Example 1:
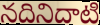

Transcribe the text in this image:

నదినిదాటి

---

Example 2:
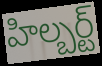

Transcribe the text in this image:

హిల్బర్ట్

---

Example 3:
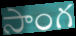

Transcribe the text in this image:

సాంగ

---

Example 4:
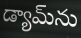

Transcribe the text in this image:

డ్యామ్‌ను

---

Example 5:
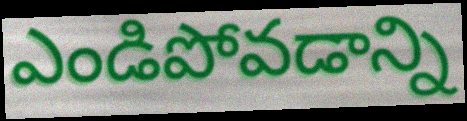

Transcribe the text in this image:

ఎండిపోవడాన్ని